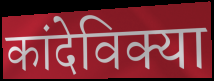
कांदेविक्या